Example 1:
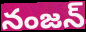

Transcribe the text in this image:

నంజన్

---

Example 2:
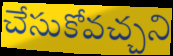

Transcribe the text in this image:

చేసుకోవచ్చని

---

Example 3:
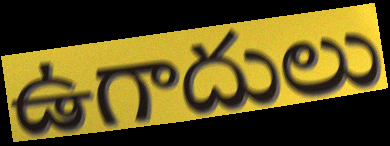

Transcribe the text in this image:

ఉగాదులు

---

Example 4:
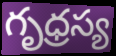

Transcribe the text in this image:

గృధ్రస్య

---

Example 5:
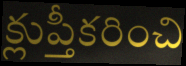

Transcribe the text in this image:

క్లుప్తీకరించి